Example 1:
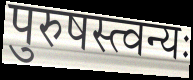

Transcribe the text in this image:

पुरुषस्त्वन्यः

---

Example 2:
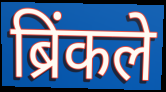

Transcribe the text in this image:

ब्रिंकले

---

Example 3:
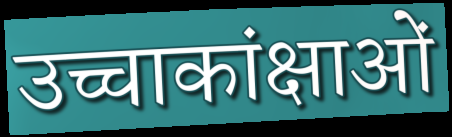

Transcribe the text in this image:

उच्चाकांक्षाओं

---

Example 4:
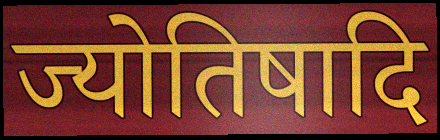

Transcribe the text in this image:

ज्योतिषादि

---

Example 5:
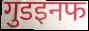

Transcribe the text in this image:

गुडइनफ